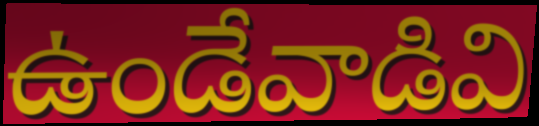
ఉండేవాడివి